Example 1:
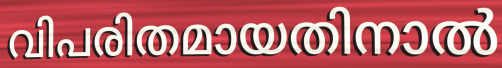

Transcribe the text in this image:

വിപരിതമായതിനാൽ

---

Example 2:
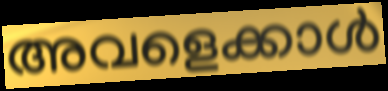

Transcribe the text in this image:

അവളെക്കാൾ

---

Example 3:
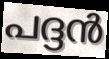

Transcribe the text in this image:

പദ്ദൻ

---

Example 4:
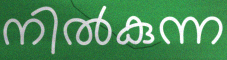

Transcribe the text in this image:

നിൽകുന്ന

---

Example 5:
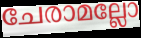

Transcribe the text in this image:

ചേരാമല്ലോ